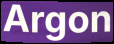
Argon